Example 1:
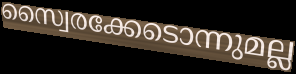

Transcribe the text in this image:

സ്വൈരക്കേടൊന്നുമല്ല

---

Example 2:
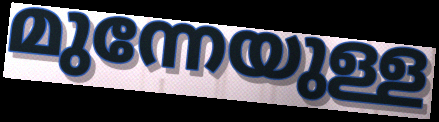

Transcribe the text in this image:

മുന്നേയുള്ള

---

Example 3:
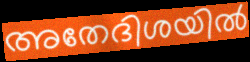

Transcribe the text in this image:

അതേദിശയിൽ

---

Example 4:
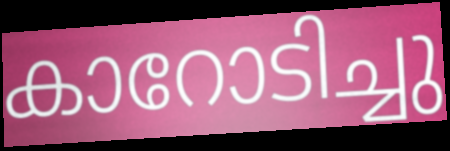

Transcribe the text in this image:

കാറോടിച്ചു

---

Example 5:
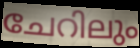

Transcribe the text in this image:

ചേറിലും